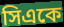
সিএকে